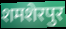
शमशेरपुर